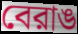
বেরাঙ